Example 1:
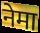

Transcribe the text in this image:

नेमा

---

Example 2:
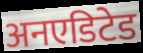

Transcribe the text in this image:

अनएडिटेड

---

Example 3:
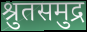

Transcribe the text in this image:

श्रुतसमुद्र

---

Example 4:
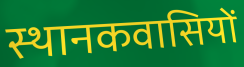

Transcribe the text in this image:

स्थानकवासियों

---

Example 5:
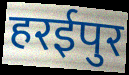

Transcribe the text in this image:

हरईपुर